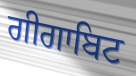
ਗੀਗਾਬਿਟ